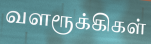
வளரூக்கிகள்